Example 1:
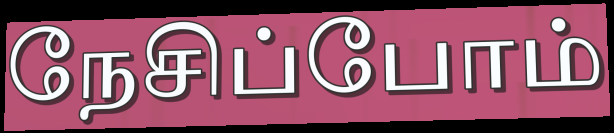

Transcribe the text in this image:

நேசிப்போம்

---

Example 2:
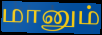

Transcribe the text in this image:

மானும்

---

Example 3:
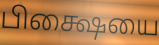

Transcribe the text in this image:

பிக்ஷையை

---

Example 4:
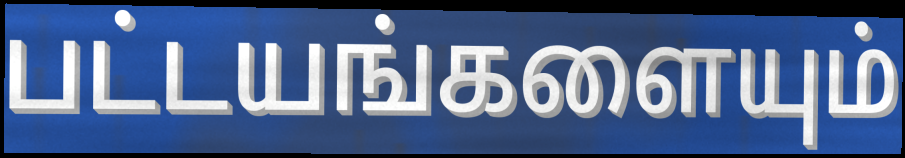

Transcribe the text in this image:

பட்டயங்களையும்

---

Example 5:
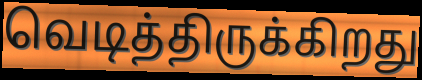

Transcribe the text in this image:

வெடித்திருக்கிறது